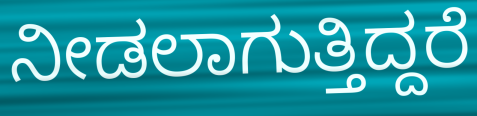
ನೀಡಲಾಗುತ್ತಿದ್ದರೆ